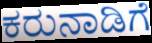
ಕರುನಾಡಿಗೆ